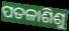
ପତଳାଶିଶୁ